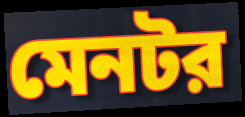
মেনটর